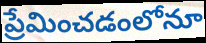
ప్రేమించడంలోనూ